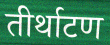
तीर्थाटण